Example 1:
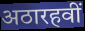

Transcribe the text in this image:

अठारहवीं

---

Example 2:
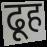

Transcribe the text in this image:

ढूह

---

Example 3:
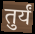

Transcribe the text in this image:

तुर्यं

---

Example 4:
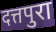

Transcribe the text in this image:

दत्तपुरा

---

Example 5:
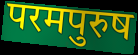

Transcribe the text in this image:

परमपुरुष